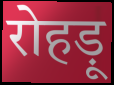
रोहड़ू